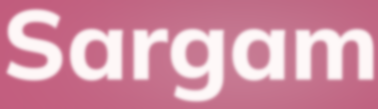
Sargam